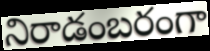
నిరాడంబరంగా